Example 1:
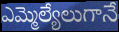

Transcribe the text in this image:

ఎమ్మెల్యేలుగానే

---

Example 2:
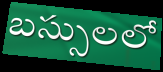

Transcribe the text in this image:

బస్సులలో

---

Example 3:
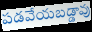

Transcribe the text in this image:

పడవేయబడ్డావు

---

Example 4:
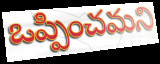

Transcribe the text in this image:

ఒప్పించమని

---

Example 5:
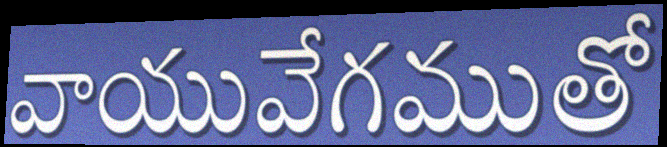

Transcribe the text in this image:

వాయువేగముతో